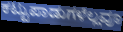
ಕಟ್ಟುಪಾಡುಗಳೆಲ್ಲವೂ